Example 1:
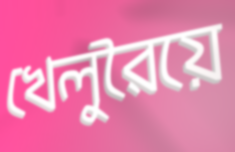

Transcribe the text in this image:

খেলুৱৈয়ে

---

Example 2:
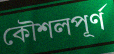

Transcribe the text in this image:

কৌশলপূৰ্ণ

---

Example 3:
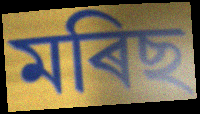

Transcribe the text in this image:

মৰিছ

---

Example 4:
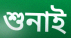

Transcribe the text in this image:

শুনাই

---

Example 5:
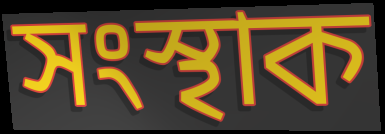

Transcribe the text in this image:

সংস্থাক